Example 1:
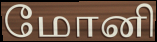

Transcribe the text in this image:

மோனி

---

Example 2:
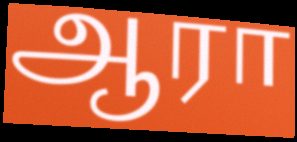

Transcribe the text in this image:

ஆரா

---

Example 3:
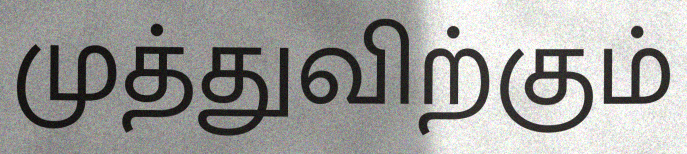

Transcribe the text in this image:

முத்துவிற்கும்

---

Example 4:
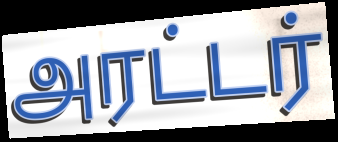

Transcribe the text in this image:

அரட்டர்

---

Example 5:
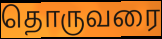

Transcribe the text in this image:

தொருவரை